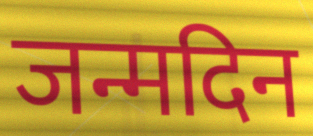
जन्मदिन